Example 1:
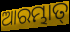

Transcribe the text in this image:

ଆରମ୍ଭାତ୍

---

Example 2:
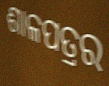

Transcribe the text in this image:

ଶାଳପତ୍ରର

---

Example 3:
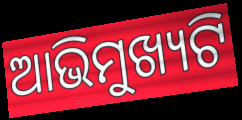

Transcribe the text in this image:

ଆଭିମୁଖ୍ୟଟି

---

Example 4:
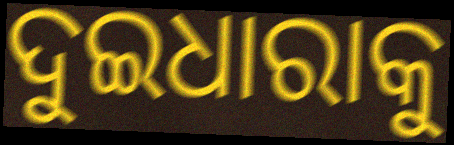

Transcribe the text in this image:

ଦୁଇଧାରାକୁ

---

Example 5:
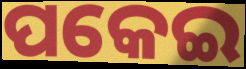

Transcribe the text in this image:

ପକେଇ